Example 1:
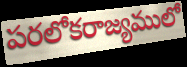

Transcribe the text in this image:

పరలోకరాజ్యములో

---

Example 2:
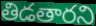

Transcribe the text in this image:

తిడతారని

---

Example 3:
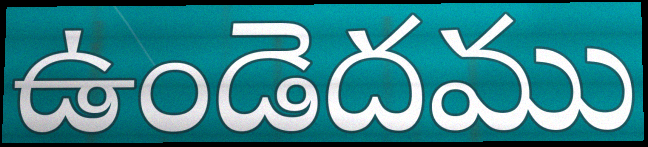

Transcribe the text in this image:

ఉండెదము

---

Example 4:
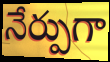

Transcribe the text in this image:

నేర్పుగా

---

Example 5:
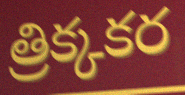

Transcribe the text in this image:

త్రిక్కకర